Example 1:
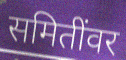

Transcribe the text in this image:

समितींवर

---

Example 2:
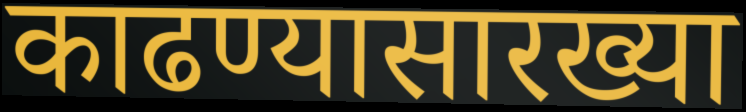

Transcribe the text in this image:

काढण्यासारख्या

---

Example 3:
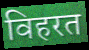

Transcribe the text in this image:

विहरत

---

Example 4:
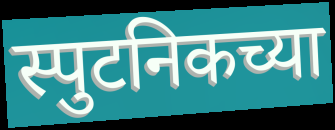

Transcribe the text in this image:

स्पुटनिकच्या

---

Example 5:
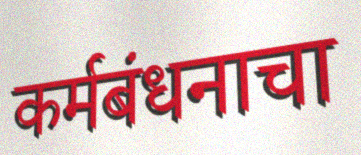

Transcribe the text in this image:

कर्मबंधनाचा